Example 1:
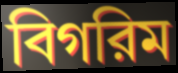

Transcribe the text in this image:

বিগরিম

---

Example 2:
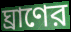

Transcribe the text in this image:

ঘ্রাণের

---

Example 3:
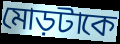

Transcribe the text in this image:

মোড়টাকে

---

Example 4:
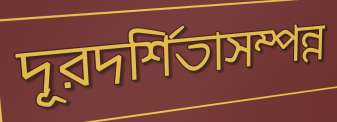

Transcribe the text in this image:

দূরদর্শিতাসম্পন্ন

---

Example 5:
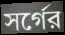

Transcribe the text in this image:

সর্গের